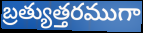
బ్రత్యుత్తరముగా